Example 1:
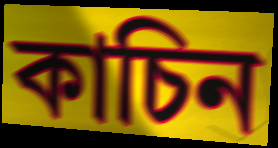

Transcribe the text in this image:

কাচিন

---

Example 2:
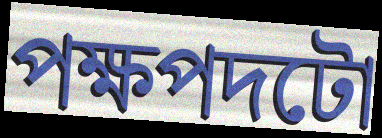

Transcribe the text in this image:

পক্ষপদটো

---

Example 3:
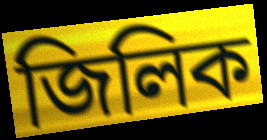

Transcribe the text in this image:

জিলিক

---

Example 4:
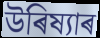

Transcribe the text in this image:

উৰিষ্যাৰ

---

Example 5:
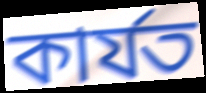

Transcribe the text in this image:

কাৰ্যত